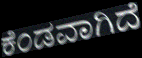
ಕೆಂಡವಾಗಿದೆ